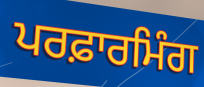
ਪਰਫ਼ਾਰਮਿੰਗ